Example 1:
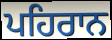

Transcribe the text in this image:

ਪਹਿਰਾਨ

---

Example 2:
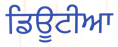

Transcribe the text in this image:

ਡਿਊਟੀਆ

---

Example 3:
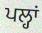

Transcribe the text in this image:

ਪਲ੍ਹਾਂ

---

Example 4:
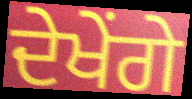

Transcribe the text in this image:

ਦੇਖੇਂਗੇ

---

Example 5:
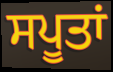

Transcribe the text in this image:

ਸਪੂਤਾਂ